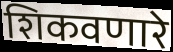
शिकवणारे